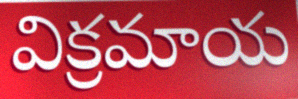
విక్రమాయ